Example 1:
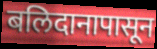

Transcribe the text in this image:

बलिदानापासून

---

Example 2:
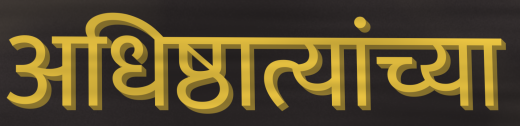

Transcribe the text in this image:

अधिष्ठात्यांच्या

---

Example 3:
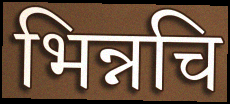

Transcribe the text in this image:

भिन्नचि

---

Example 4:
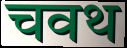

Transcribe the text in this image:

चवथ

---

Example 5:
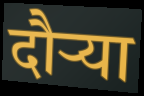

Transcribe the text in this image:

दौऱ्या